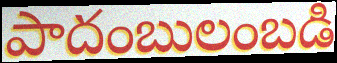
పాదంబులంబడి